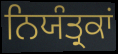
ਨਿਯੰਤ੍ਰਕਾਂ